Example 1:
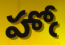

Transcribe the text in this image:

హోఁ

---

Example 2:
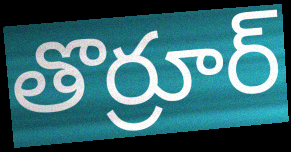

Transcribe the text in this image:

తొర్రూర్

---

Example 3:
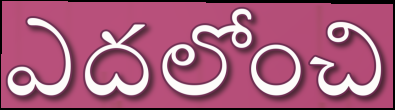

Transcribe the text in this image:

ఎదలోంచి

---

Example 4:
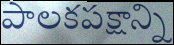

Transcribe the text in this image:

పాలకపక్షాన్ని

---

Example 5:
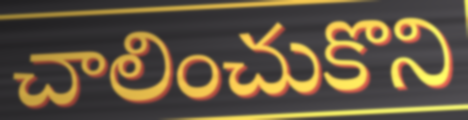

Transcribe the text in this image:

చాలించుకొని